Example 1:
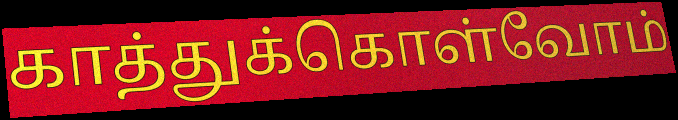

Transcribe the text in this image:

காத்துக்கொள்வோம்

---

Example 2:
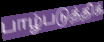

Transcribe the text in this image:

பாழ்படுத்திக்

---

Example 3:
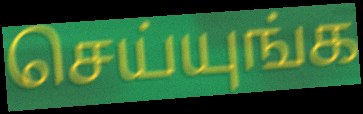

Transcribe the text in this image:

செய்யுங்க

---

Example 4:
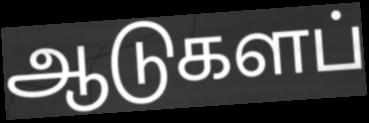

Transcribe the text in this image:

ஆடுகளப்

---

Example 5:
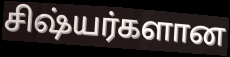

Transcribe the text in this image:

சிஷ்யர்களான